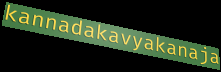
kannadakavyakanaja